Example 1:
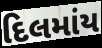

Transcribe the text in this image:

દિલમાંય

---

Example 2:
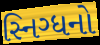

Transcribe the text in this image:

સ્નિગ્ધનો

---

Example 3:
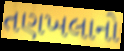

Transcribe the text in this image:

તણખલાનો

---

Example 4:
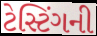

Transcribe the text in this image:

ટેસ્ટિંગની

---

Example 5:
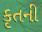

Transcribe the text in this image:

કૃતની